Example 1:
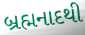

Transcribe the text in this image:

બ્રહ્મનાદથી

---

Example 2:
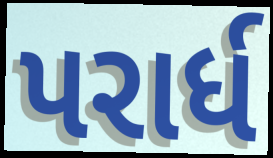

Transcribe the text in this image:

પરાર્ધ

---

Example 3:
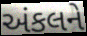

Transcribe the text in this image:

અંકલને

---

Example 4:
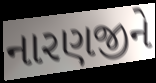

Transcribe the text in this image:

નારણજીને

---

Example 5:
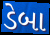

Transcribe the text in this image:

ડેબા